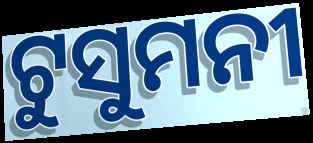
ଟୁସୁମନୀ